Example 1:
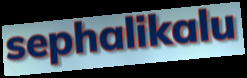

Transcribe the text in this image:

sephalikalu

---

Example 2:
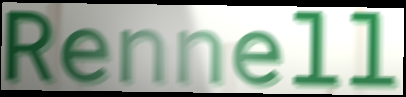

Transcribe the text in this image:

Rennell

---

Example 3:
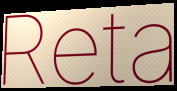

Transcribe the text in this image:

Reta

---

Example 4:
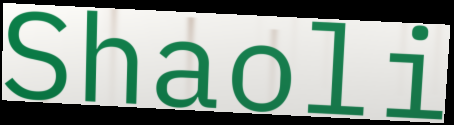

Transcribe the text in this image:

Shaoli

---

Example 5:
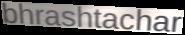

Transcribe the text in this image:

bhrashtachar